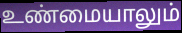
உண்மையாலும்